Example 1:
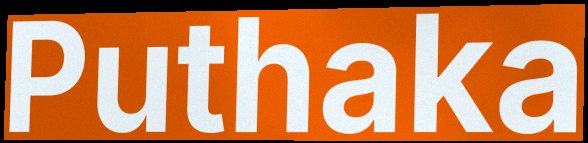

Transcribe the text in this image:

Puthaka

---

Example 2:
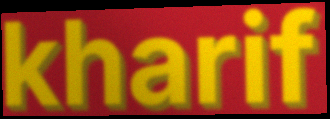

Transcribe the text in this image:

kharif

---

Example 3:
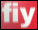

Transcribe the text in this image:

fiy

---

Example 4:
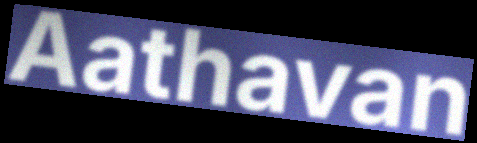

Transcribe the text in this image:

Aathavan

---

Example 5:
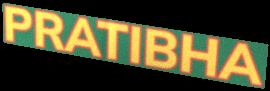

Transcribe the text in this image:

PRATIBHA